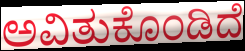
ಅವಿತುಕೊಂಡಿದೆ